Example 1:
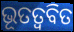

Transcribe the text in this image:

ଭୂତତ୍ଵବିତ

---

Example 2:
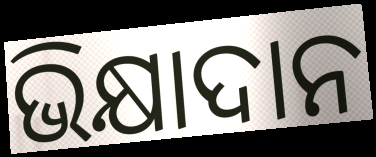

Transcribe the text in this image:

ଭିକ୍ଷାଦାନ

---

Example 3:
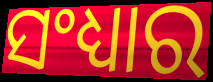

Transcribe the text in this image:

ସଂଧ୍ୟାର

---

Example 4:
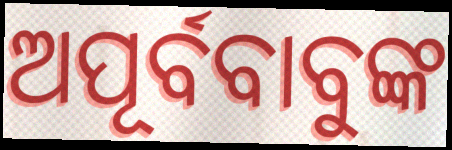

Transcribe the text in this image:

ଅପୂର୍ବବାବୁଙ୍କ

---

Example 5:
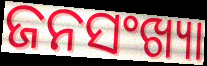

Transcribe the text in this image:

ଜନସଂଖ୍ଯା